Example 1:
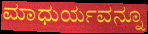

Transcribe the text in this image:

ಮಾಧುರ್ಯವನ್ನೂ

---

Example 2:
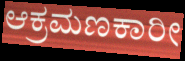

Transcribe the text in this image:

ಆಕ್ರಮಣಕಾರೀ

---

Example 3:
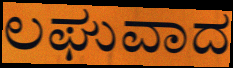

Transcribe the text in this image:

ಲಘುವಾದ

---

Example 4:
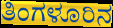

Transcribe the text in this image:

ತಿಂಗಳೂರಿನ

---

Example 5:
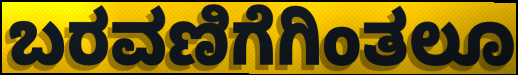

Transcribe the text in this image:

ಬರವಣಿಗೆಗಿಂತಲೂ